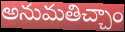
అనుమతిచ్చాం